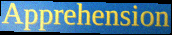
Apprehension